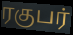
ரகுபர்